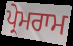
ਪ੍ਰੇਮਰਾਮ